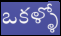
ఒకళ్ళో